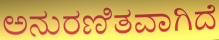
ಅನುರಣಿತವಾಗಿದೆ